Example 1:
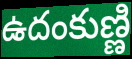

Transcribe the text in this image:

ఉదంకుణ్ణి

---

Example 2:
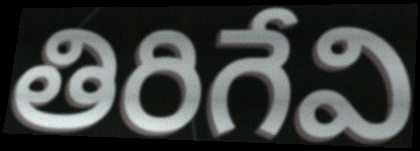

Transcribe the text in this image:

తిరిగేవి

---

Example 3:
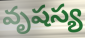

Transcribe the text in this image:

వృషస్య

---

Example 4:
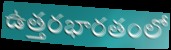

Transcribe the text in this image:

ఉత్తరభారతంలో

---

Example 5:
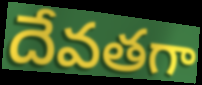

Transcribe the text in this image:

దేవతగా